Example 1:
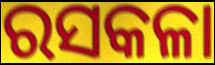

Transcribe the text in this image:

ରସକଳା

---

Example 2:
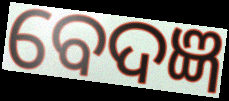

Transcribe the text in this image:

ବେଦଜ୍ଞ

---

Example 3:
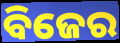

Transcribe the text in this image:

ବିଜେର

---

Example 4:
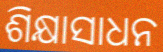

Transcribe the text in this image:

ଶିକ୍ଷାସାଧନ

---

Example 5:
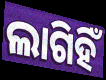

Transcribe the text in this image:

ଲାଗିହିଁ